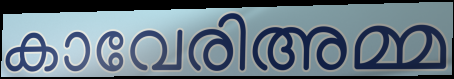
കാവേരിഅമ്മ